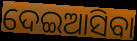
ଦେଇଆସିବା